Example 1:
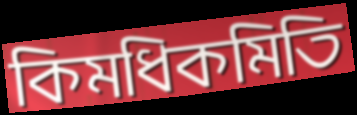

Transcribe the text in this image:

কিমধিকমিতি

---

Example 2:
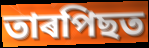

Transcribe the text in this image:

তাৰপিছত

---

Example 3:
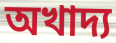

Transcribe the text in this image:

অখাদ্য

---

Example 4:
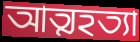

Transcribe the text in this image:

আত্মহত্যা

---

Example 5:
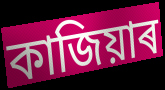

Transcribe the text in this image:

কাজিয়াৰ